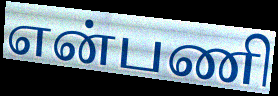
என்பணி